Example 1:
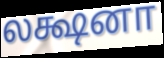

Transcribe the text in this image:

லக்ஷனா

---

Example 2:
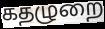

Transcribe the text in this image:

கதழுறை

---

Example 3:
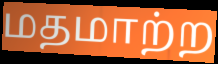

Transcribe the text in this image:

மதமாற்ற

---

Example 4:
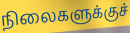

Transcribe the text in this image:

நிலைகளுக்குச்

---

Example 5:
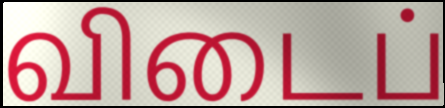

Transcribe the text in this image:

விடைப்